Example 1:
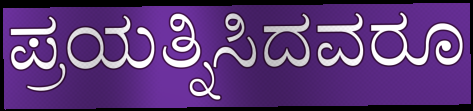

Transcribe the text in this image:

ಪ್ರಯತ್ನಿಸಿದವರೂ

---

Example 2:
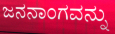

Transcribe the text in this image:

ಜನನಾಂಗವನ್ನು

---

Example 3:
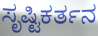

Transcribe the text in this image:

ಸೃಷ್ಟಿಕರ್ತನ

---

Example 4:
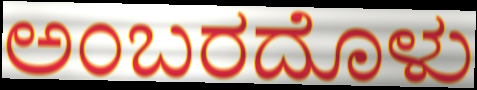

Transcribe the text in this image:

ಅಂಬರದೊಳು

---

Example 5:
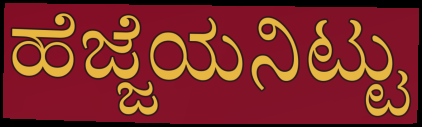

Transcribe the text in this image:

ಹೆಜ್ಜೆಯನಿಟ್ಟು